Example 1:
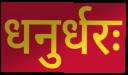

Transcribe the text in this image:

धनुर्धरः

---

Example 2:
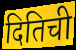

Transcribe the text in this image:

दितिची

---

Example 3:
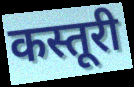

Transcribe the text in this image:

कस्तूरी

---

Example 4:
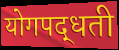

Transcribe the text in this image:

योगपद्धती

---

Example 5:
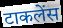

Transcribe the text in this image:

टाकलेंस